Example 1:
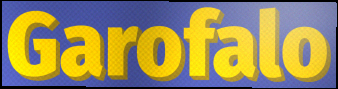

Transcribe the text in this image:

Garofalo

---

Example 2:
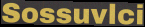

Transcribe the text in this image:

Sossuvlci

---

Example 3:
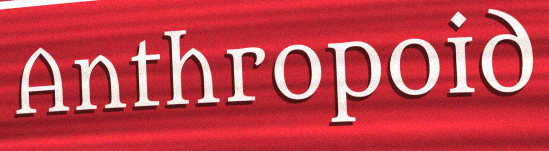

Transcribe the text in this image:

Anthropoid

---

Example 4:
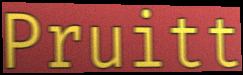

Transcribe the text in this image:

Pruitt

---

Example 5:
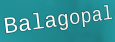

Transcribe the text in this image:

Balagopal